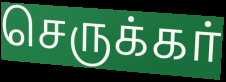
செருக்கர்